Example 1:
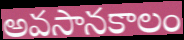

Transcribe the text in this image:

అవసానకాలం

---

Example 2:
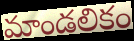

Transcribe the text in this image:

మాండలికం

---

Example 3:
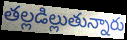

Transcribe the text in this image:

తల్లడిల్లుతున్నారు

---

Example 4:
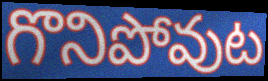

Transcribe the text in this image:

గొనిపోవుట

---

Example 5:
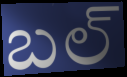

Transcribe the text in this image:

బల్